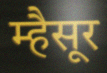
म्हैसूर